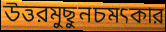
উত্তরমুছুনচমৎকার